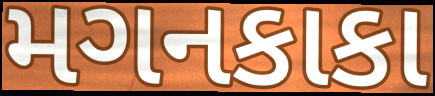
મગનકાકા